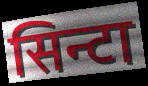
सिन्टा